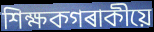
শিক্ষকগৰাকীয়ে